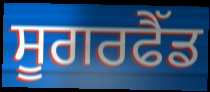
ਸੂਗਰਫੈੱਡ